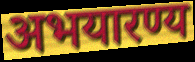
अभयारण्य